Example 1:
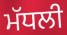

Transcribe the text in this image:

ਮੱਧਲੀ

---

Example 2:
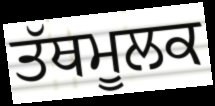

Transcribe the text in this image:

ਤੱਥਮੂਲਕ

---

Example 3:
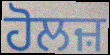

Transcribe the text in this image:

ਹੋਲਜ਼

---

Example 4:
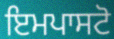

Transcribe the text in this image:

ਇਮਪਾਸਟੋ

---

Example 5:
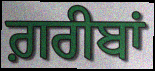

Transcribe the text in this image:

ਗ਼ਰੀਬਾਂ